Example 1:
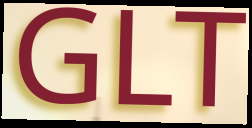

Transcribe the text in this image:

GLT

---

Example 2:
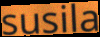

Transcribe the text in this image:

susila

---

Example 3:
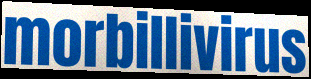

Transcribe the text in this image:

morbillivirus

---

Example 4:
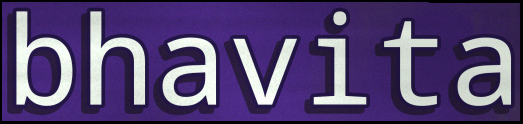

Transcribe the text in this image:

bhavita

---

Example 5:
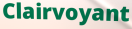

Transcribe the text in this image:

Clairvoyant